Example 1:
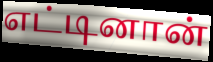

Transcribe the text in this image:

எட்டினான்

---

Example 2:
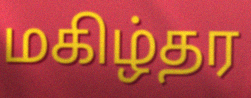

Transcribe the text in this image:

மகிழ்தர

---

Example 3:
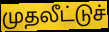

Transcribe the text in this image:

முதலீட்டுச்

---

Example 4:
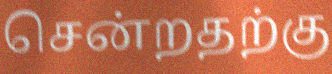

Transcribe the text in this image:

சென்றதற்கு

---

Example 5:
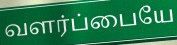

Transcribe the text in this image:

வளர்ப்பையே